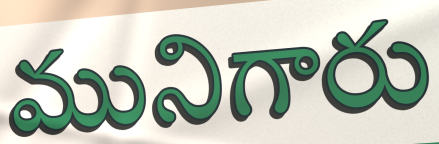
మునిగారు